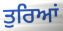
ਤੁਰਿਆਂ